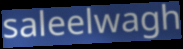
saleelwagh